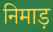
निमाड़